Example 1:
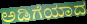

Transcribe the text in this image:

ಅಡಿಗೆಯಾದ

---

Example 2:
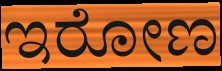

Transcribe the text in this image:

ಇರೋಣ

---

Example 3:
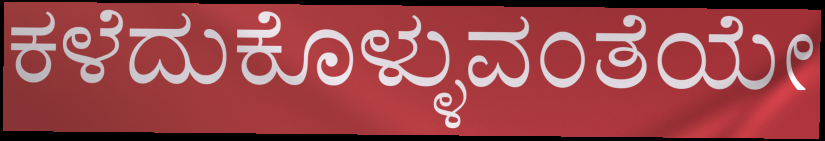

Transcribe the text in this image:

ಕಳೆದುಕೊಳ್ಳುವಂತೆಯೇ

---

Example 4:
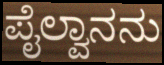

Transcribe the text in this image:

ಪೈಲ್ವಾನನು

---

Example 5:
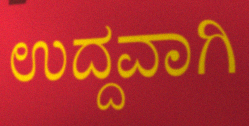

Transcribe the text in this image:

ಉದ್ದವಾಗಿ